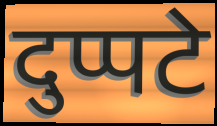
दुप्पटे